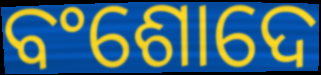
ବଂଶୋଦେ